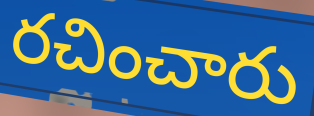
రచించారు